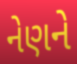
નેણને